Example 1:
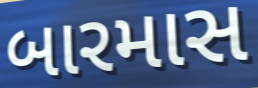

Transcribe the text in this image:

બારમાસ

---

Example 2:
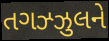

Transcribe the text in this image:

તગઝ્ઝુલને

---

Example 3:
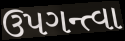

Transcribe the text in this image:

ઉપગન્ત્વા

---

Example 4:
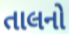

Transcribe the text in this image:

તાલનો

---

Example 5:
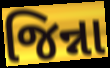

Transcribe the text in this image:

જિન્ના